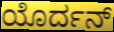
ಯೊರ್ದನ್